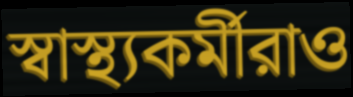
স্বাস্থ্যকর্মীরাও